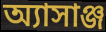
অ্যাসাঞ্জ